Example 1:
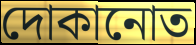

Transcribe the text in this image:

দোকানোত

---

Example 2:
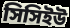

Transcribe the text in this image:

সিসিইউ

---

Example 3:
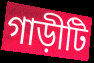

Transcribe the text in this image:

গাড়ীটি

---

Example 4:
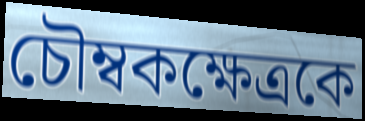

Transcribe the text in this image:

চৌম্বকক্ষেত্রকে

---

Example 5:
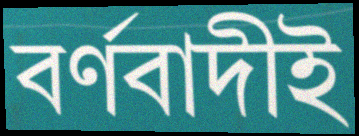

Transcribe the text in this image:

বর্ণবাদীই